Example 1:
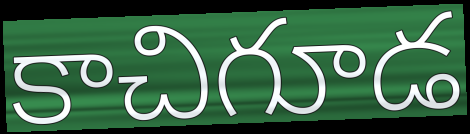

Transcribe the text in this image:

కాచిగూడ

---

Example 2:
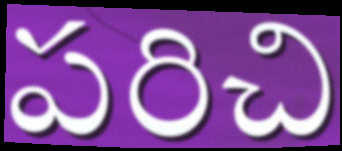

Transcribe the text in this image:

పరిచి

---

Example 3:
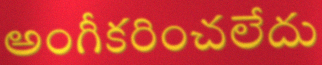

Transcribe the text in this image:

అంగీకరించలేదు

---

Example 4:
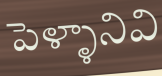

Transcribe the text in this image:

పెళ్ళానివి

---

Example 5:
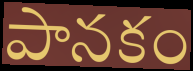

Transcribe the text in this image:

పానకం